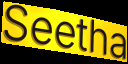
Seetha